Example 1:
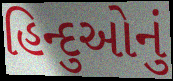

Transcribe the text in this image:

હિન્દુઓનું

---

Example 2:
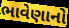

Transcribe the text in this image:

ભાવેણાનો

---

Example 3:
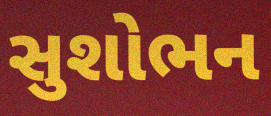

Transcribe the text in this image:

સુશોભન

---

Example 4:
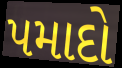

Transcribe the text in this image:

પમાદો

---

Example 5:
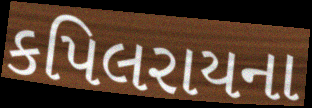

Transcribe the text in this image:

કપિલરાયના